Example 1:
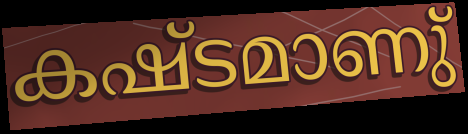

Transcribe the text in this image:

കഷ്ടമാണു്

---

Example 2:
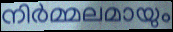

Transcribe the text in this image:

നിർമ്മലമായും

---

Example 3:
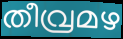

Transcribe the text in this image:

തീവ്രമഴ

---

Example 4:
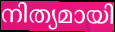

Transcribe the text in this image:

നിത്യമായി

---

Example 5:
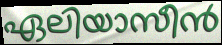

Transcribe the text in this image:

ഏലിയാസീൻ